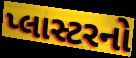
પ્લાસ્ટરનો